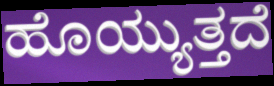
ಹೊಯ್ಯುತ್ತದೆ